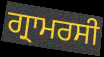
ਗ੍ਰਾਮਰਸੀ